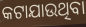
କଟାଯାଉଥିବା